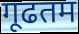
गूढतम